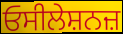
ਓਸੀਲੇਸ਼ਨਜ਼